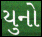
યુનો